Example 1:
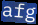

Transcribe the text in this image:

afg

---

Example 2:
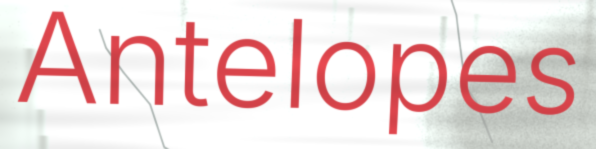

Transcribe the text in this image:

Antelopes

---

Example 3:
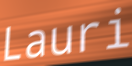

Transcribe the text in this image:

Lauri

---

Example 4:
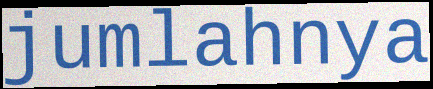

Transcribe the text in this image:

jumlahnya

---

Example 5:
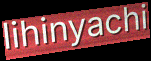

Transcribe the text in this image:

lihinyachi